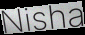
Nisha